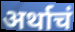
अर्थाचं